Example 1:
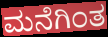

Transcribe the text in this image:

ಮನೆಗಿಂತ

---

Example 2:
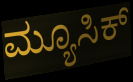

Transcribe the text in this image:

ಮ್ಯೂಸಿಕ್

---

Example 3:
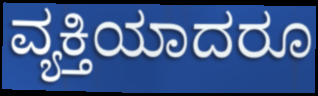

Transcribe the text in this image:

ವ್ಯಕ್ತಿಯಾದರೂ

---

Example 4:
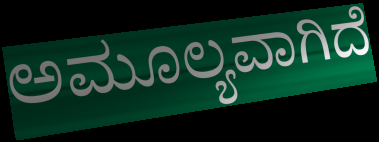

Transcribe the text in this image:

ಅಮೂಲ್ಯವಾಗಿದೆ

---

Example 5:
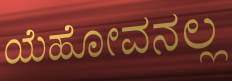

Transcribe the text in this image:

ಯೆಹೋವನಲ್ಲ